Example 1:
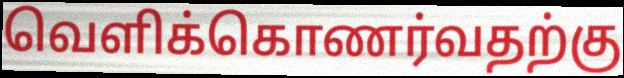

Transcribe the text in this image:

வெளிக்கொணர்வதற்கு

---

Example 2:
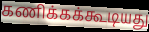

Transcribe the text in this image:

கணிக்கக்கூடியது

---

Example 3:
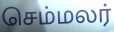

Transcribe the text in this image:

செம்மலர்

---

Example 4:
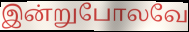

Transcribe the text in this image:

இன்றுபோலவே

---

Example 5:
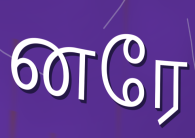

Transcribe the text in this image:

னரே